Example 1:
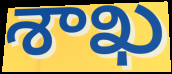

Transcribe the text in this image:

శాఖ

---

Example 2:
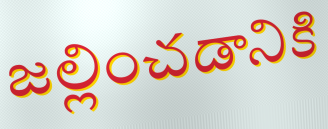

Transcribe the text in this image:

జల్లించడానికి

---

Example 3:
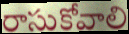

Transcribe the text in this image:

రాసుకోవాలి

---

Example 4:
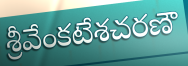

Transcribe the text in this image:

శ్రీవేంకటేశచరణౌ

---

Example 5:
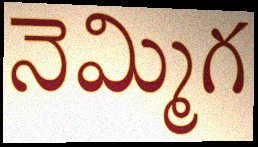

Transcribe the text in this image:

నెమ్మిగ